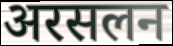
अरसलन